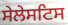
ਸੇਲੇਸਟਿਸ